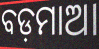
ବଡ଼ମାଆ